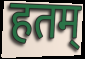
हतम्